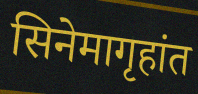
सिनेमागृहांत